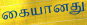
கையானது